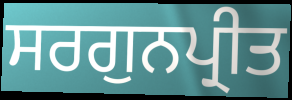
ਸਰਗੁਨਪ੍ਰੀਤ